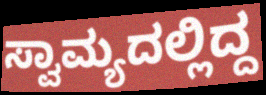
ಸ್ವಾಮ್ಯದಲ್ಲಿದ್ದ